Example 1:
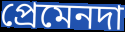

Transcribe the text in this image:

প্রেমেনদা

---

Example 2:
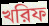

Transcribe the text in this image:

খরিফ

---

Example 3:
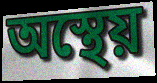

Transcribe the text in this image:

অস্থেয়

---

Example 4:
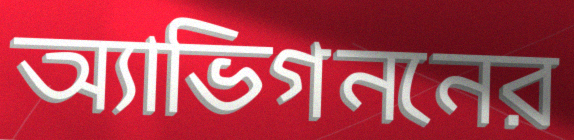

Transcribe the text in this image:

অ্যাভিগননের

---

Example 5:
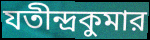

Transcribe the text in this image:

যতীন্দ্রকুমার